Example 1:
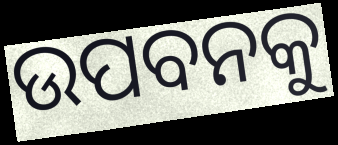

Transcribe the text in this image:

ଉପବନକୁ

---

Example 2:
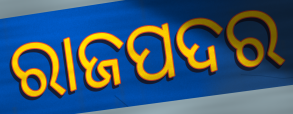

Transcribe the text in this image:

ରାଜପଦର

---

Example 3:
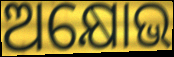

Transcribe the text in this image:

ଅକ୍ଷୋଭ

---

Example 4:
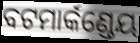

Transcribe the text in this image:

ବଟମାର୍କଣ୍ଡେୟ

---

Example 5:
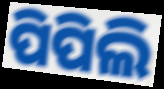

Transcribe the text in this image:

ପିପିଲି